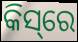
କିସ୍‌ରେ